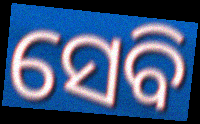
ସେବି